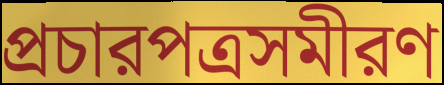
প্রচারপত্রসমীরণ